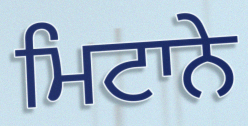
ਮਿਟਾਨੇ